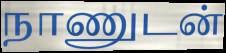
நாணுடன்